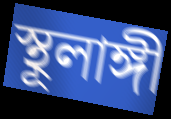
স্থূলাঙ্গী